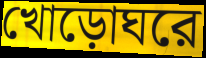
খোড়োঘরে